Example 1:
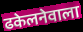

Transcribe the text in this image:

ढकेलनेवाला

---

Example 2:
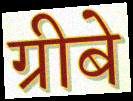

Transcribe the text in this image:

ग्रीबे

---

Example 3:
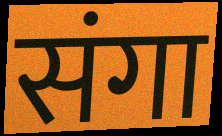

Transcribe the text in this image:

संगा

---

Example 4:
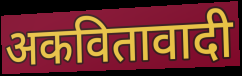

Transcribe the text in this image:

अकवितावादी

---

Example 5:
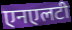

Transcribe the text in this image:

एनएलटी